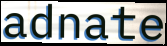
adnate